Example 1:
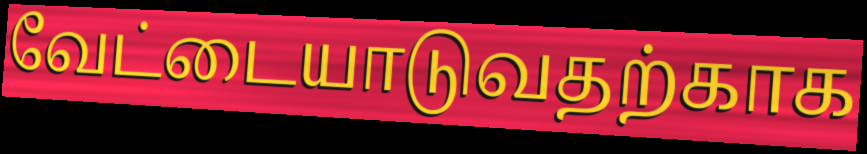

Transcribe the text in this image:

வேட்டையாடுவதற்காக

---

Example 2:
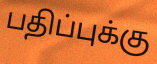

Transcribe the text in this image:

பதிப்புக்கு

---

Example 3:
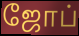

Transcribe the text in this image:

ஜோப்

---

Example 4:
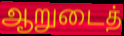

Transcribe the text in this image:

ஆறுடைத்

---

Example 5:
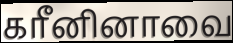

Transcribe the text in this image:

கரீனினாவை